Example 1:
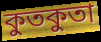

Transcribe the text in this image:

কুতকুতা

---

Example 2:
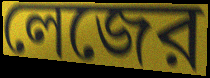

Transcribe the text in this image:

লেজের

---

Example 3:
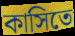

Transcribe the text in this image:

কাসিতে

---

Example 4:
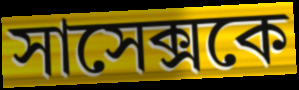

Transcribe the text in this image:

সাসেক্সকে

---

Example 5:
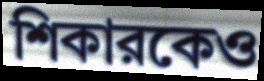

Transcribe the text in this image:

শিকারকেও